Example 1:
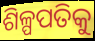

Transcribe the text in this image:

ଶିଳ୍ପପତିକୁ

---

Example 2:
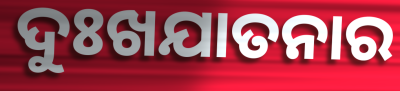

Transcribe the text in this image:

ଦୁଃଖଯାତନାର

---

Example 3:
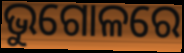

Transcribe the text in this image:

ଭୁଗୋଳରେ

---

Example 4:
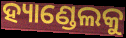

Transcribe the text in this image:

ହ୍ୟାଣ୍ଡେଲକୁ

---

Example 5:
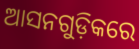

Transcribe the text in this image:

ଆସନଗୁଡ଼ିକରେ